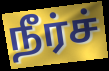
நீர்ச்